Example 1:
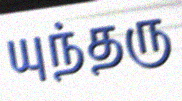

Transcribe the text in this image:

யுந்தரு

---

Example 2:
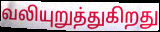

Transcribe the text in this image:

வலியுறுத்துகிறது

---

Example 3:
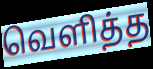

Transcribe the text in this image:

வெளித்த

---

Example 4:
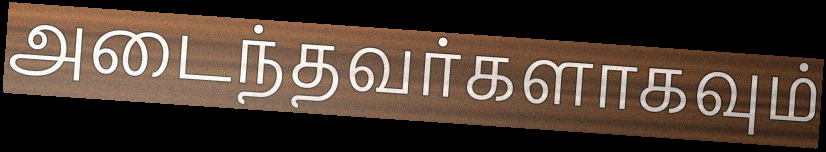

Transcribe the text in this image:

அடைந்தவர்களாகவும்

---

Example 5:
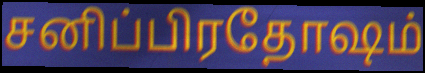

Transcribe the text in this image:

சனிப்பிரதோஷம்